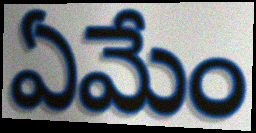
ఏమేం